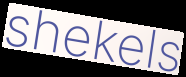
shekels